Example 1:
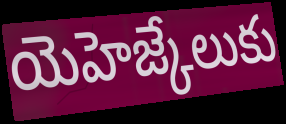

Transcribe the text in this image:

యెహెజ్కేలుకు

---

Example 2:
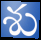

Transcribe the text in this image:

శు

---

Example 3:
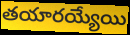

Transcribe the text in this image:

తయారయ్యేయి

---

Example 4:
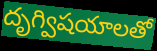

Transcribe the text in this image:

దృగ్విషయాలతో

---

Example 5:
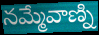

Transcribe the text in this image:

నమ్మేవాణ్ని